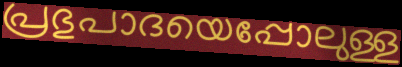
പ്രഭുപാദയെപ്പോലുള്ള